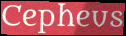
Cepheus